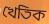
খেতিক